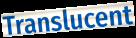
Translucent